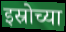
इस्रोच्या